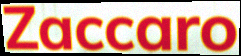
Zaccaro